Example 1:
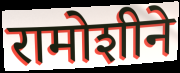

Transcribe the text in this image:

रामोशीने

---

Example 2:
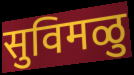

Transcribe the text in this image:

सुविमळु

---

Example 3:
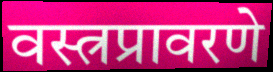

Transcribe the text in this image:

वस्त्रप्रावरणे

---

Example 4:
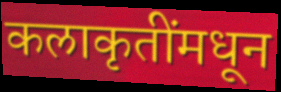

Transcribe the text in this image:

कलाकृतींमधून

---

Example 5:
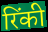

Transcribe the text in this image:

रिंकी